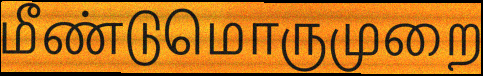
மீண்டுமொருமுறை